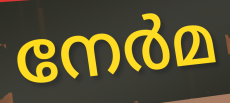
നേർമ